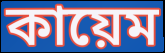
কায়েম